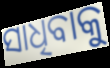
ସାଧିବାକୁ